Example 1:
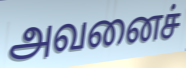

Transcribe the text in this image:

அவனைச்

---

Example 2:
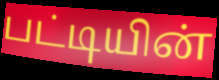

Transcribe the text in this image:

பட்டியின்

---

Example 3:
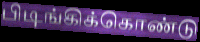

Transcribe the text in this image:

பிடிங்கிக்கொண்டு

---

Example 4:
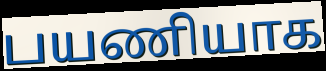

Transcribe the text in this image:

பயணியாக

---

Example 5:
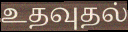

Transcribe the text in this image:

உதவுதல்